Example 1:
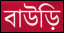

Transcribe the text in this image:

বাউড়ি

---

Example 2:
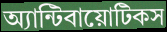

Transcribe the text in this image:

অ্যান্টিবায়োটিকস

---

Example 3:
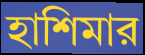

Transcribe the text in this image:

হাশিমার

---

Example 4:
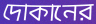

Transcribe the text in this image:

দোকানের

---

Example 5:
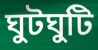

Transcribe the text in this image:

ঘুটঘুটি